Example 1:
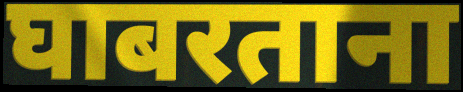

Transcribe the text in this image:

घाबरताना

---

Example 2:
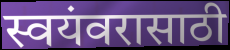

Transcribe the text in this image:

स्वयंवरासाठी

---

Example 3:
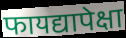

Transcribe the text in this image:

फायद्यापेक्षा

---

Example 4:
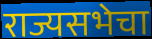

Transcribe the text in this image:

राज्यसभेचा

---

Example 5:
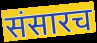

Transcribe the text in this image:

संसारच